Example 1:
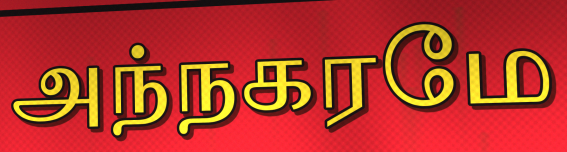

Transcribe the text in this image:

அந்நகரமே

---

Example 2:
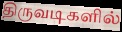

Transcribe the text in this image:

திருவடிகளில்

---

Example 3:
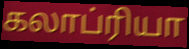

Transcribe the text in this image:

கலாப்ரியா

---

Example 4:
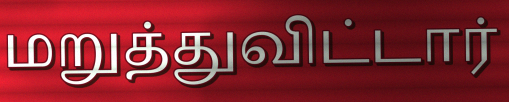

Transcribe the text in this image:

மறுத்துவிட்டார்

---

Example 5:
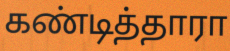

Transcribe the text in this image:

கண்டித்தாரா